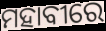
ମହାବୀରେ